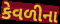
કેવળીના